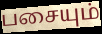
பசையும்